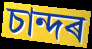
চান্দৰ